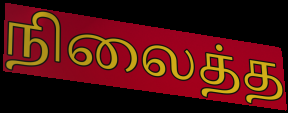
நிலைத்த